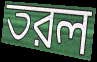
তরল